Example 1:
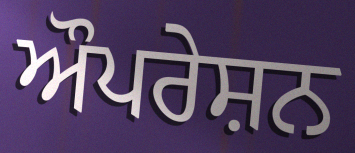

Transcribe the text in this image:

ਔਪਰੇਸ਼ਨ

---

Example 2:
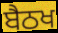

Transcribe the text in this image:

ਬੈਠਖ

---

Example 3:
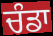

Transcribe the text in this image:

ਚੰਡਾ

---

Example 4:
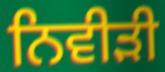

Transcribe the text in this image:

ਨਿਵੀੜੀ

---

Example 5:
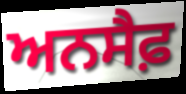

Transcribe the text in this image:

ਅਨਸੈਫ਼